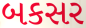
બકસર